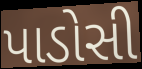
પાડોસી